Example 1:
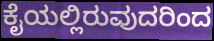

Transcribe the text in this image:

ಕೈಯಲ್ಲಿರುವುದರಿಂದ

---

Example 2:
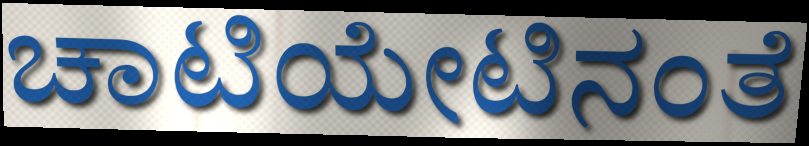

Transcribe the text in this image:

ಚಾಟಿಯೇಟಿನಂತೆ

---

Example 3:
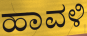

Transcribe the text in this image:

ಹಾವಳಿ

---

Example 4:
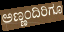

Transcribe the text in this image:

ಅಣ್ಣಂದಿರಿಗೂ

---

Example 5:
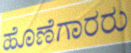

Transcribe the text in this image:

ಹೊಣೆಗಾರರು